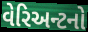
વેરિઅન્ટનો